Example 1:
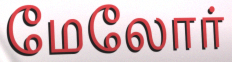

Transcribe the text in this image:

மேலோர்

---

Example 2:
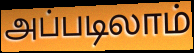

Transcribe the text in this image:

அப்படிலாம்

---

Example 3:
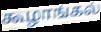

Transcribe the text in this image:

கூழாங்கல்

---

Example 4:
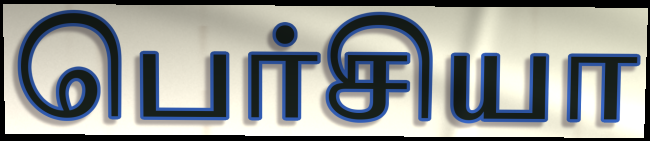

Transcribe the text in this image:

பெர்சியா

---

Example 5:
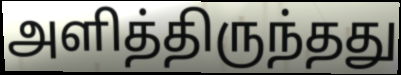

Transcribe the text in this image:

அளித்திருந்தது